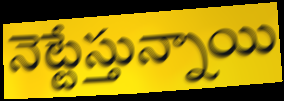
నెట్టేస్తున్నాయి